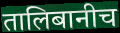
तालिबानीच